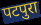
पटपुरा